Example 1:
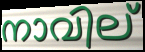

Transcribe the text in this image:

നാവില്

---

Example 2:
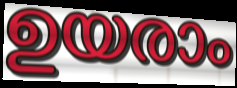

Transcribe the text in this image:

ഉയരാം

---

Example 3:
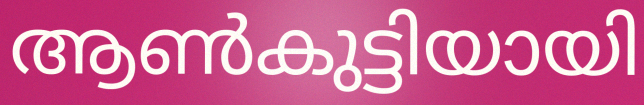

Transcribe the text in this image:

ആൺകുട്ടിയായി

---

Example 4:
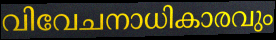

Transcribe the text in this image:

വിവേചനാധികാരവും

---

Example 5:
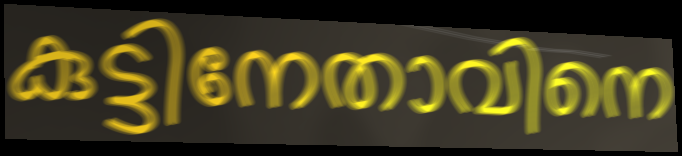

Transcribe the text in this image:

കുട്ടിനേതാവിനെ